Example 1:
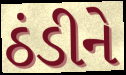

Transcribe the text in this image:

ઠંડીને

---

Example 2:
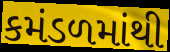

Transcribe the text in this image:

કમંડળમાંથી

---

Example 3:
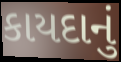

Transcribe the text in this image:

કાયદાનું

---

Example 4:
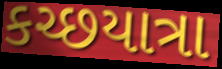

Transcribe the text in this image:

કચ્છયાત્રા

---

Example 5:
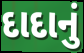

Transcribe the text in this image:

દાદાનું